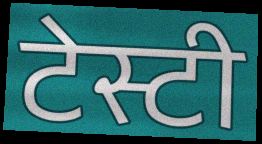
टेस्‍टी